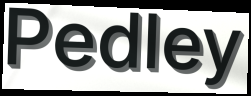
Pedley